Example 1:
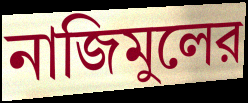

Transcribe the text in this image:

নাজিমুলের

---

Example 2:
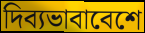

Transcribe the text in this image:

দিব্যভাবাবেশে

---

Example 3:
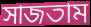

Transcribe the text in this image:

সাজতাম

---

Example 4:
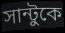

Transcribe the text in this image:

সান্টুকে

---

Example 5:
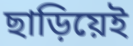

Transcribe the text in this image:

ছাড়িয়েই